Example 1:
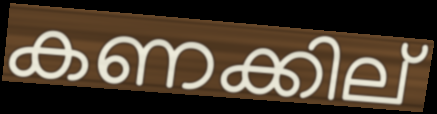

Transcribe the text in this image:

കണക്കില്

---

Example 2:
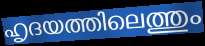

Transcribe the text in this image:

ഹൃദയത്തിലെത്തും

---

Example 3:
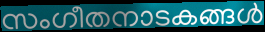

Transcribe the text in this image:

സംഗീതനാടകങ്ങൾ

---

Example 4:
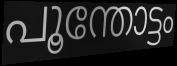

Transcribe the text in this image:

പൂന്തോട്ടം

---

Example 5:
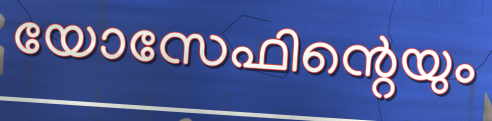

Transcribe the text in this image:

യോസേഫിന്റെയും